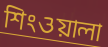
শিংওয়ালা